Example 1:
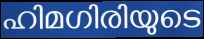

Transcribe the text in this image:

ഹിമഗിരിയുടെ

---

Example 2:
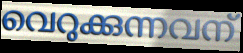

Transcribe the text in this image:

വെറുക്കുന്നവന്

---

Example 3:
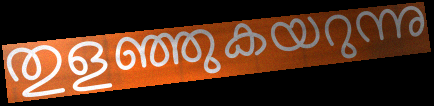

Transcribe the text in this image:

തുളഞ്ഞുകയറുന്നു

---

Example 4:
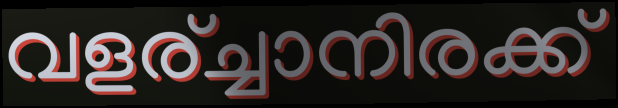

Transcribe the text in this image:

വളര്ച്ചാനിരക്ക്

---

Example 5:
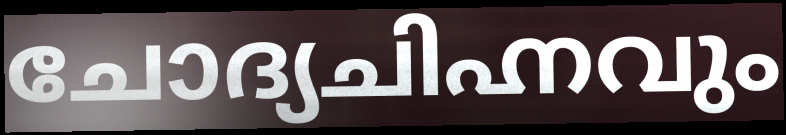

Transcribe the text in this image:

ചോദ്യചിഹ്നവും